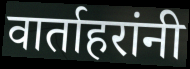
वार्ताहरांनी